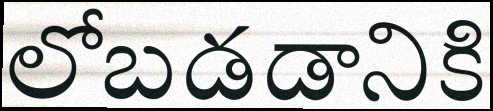
లోబడడానికి